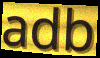
adb